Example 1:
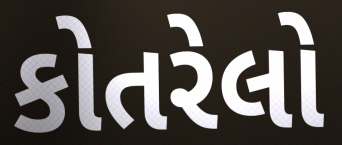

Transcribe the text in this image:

કોતરેલો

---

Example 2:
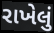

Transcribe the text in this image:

રાખેલું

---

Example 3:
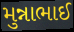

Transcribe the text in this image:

મુન્નાભાઈ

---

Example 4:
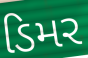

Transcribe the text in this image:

ડિમર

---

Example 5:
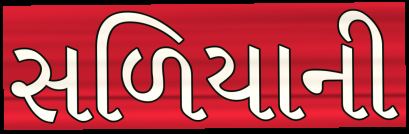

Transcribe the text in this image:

સળિયાની